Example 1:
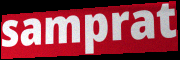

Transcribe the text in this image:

samprat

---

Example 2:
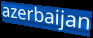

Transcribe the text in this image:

azerbaijan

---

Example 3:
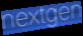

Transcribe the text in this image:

nextgen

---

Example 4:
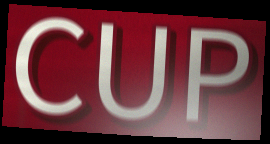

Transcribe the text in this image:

CUP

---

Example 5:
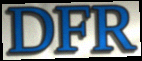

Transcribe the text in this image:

DFR